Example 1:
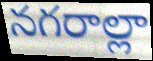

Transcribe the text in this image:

నగరాల్లా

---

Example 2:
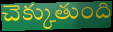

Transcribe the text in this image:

చెక్కుతుంది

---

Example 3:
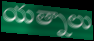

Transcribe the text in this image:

యత్నాలు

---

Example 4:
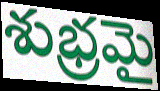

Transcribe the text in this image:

శుభ్రమై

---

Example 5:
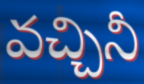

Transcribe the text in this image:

వచ్చినీ